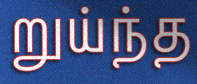
றுய்ந்த